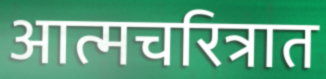
आत्मचरित्रात